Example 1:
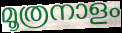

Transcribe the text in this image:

മൂത്രനാളം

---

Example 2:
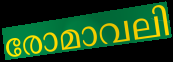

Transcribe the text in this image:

രോമാവലി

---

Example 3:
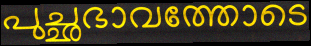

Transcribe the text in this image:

പുച്ഛഭാവത്തോടെ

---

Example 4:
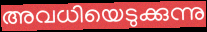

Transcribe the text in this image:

അവധിയെടുക്കുന്നു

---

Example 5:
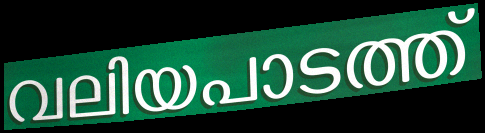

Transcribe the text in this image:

വലിയപാടത്ത്